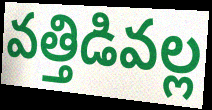
వత్తిడివల్ల